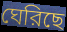
ঘেরিছে